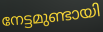
നേട്ടമുണ്ടായി